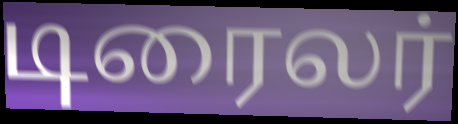
டிரைலர்